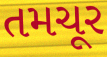
તમચૂર